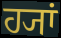
ਹ੍ਯਾਂ